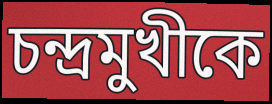
চন্দ্রমুখীকে